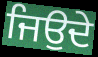
ਜਿਉਦੇ